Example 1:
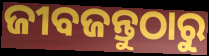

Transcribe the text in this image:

ଜୀବଜନ୍ତୁଠାରୁ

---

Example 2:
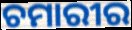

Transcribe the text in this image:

ଚମାରୀର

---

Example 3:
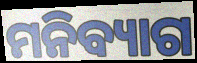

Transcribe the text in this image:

ମନିବ୍ୟାଗ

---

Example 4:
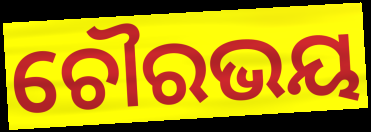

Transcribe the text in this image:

ଚୌରଭୟ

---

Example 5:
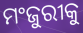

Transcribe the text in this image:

ମଂଜୁରୀକୁ